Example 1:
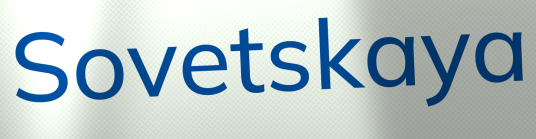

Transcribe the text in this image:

Sovetskaya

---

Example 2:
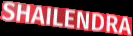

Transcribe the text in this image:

SHAILENDRA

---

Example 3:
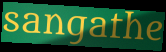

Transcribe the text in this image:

sangathe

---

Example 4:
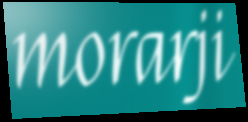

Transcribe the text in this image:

morarji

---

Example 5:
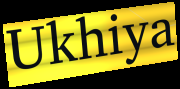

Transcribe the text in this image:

Ukhiya